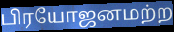
பிரயோஜனமற்ற